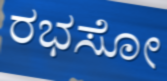
ರಭಸೋ